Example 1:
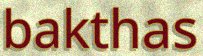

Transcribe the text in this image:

bakthas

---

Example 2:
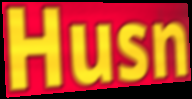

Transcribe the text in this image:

Husn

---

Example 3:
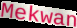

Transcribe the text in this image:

Mekwan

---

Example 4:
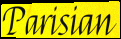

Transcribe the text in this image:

Parisian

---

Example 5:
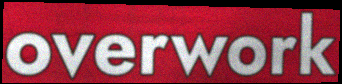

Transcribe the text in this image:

overwork